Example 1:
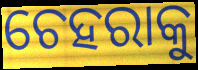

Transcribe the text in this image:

ଚେହରାକୁ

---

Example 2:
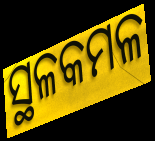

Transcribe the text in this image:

ସ୍ଥଳକମଳ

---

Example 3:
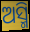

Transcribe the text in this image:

ଅସ୍ମି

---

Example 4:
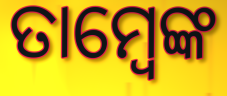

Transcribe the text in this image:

ତାମ୍ବେଙ୍କ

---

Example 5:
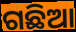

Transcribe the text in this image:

ଗଛିଆ